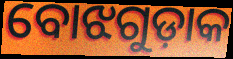
ବୋଝଗୁଡ଼ାକ